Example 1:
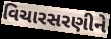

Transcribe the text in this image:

વિચારસરણીને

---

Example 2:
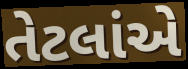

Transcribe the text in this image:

તેટલાંએ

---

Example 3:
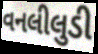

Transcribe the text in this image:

વનલીલુડી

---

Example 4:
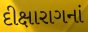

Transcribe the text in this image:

દીક્ષારાગનાં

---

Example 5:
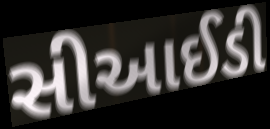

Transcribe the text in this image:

સીઆઈડી